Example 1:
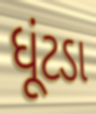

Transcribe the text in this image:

ધૂંટડા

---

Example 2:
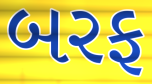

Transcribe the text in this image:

બરફ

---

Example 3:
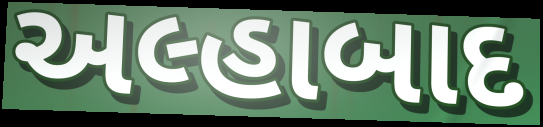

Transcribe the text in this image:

અલ્હાબાદ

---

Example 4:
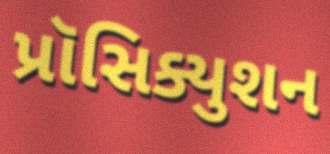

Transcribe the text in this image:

પ્રૉસિક્યુશન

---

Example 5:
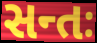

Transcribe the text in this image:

સન્તઃ